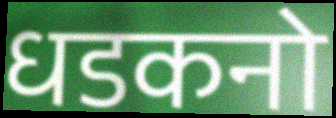
धडकनो